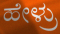
ಹೇಳ್ರು